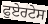
ਫੁਏਰਟੇਸ